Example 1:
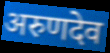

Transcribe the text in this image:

अरुणदेव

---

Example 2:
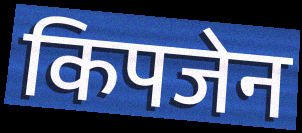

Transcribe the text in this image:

किपजेन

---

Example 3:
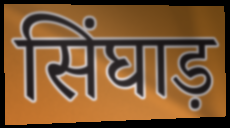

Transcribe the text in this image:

सिंघाड़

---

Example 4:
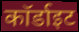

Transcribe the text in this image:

कॉर्डाइट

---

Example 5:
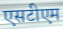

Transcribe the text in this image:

एसटीएम